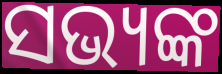
ସଭ୍ୟଙ୍କ